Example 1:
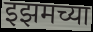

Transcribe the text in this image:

इझमच्या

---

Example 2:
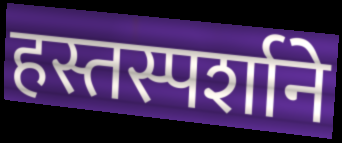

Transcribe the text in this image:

हस्तस्पर्शाने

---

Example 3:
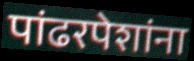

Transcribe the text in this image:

पांढरपेशांना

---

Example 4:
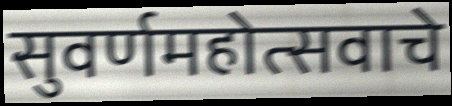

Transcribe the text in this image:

सुवर्णमहोत्सवाचे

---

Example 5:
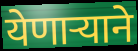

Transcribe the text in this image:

येणाऱ्याने